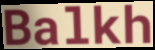
Balkh